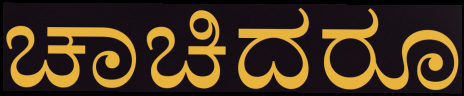
ಚಾಚಿದರೂ